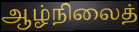
ஆழ்நிலைத்